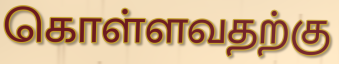
கொள்ளவதற்கு